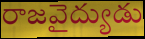
రాజవైద్యుడు